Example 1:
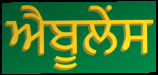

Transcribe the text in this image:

ਐਬੂਲੇਂਸ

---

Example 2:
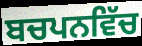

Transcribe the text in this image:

ਬਚਪਨਵਿੱਚ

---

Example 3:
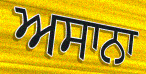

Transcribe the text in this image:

ਅਸਾਨਾ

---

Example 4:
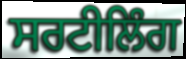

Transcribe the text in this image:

ਸਰਟੀਲਿੰਗ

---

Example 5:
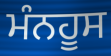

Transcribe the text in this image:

ਮੰਨਹੂਸ